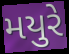
મયુરે